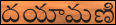
దయామణి